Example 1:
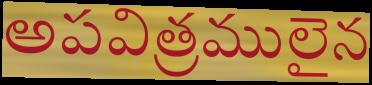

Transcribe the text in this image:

అపవిత్రములైన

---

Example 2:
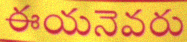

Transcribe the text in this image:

ఈయనెవరు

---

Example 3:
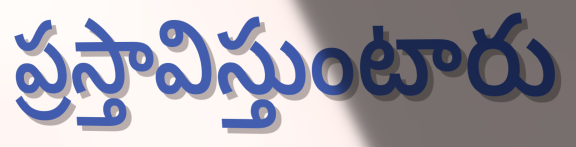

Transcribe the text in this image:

ప్రస్తావిస్తుంటారు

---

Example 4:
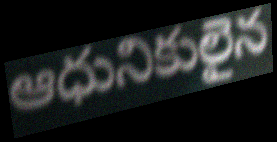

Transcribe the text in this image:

ఆధునికులైన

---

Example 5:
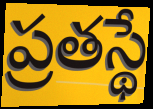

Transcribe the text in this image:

ప్రతస్థే